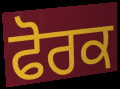
ਫੋਰਕ